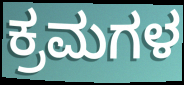
ಕ್ರಮಗಳ